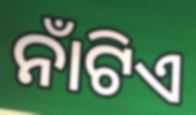
ନାଁଟିଏ